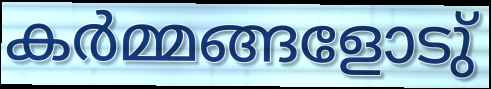
കർമ്മങ്ങളോടു്